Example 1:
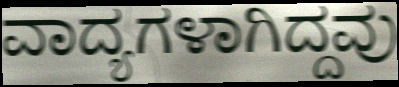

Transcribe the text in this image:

ವಾದ್ಯಗಳಾಗಿದ್ದವು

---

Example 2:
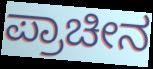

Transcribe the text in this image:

ಪ್ರಾಚೀನ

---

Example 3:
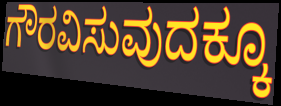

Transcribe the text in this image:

ಗೌರವಿಸುವುದಕ್ಕೂ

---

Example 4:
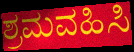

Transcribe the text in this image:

ಶ್ರಮವಹಿಸಿ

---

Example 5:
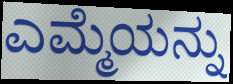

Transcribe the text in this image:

ಎಮ್ಮೆಯನ್ನು